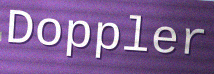
Doppler